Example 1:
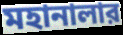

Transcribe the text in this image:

মহানালার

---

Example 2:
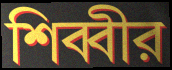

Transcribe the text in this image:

শিব্বীর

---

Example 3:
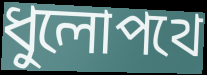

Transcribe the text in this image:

ধুলোপথে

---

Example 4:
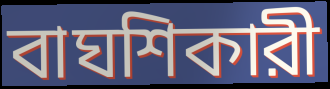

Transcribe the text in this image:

বাঘশিকারী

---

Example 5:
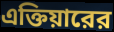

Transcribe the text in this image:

এক্তিয়ারের